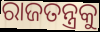
ରାଜତନ୍ତ୍ରକୁ